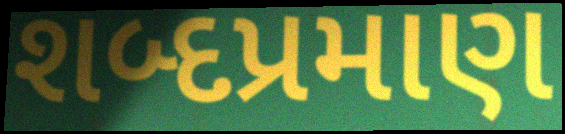
શબ્દપ્રમાણ